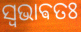
ସ୍ଵଭାଵତଃ